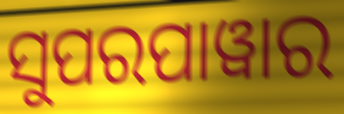
ସୁପରପାୱାର